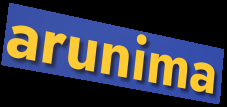
arunima